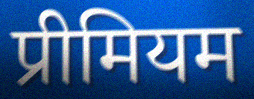
प्रीमियम